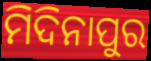
ମିଦିନାପୁର